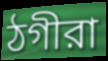
ঠগীরা